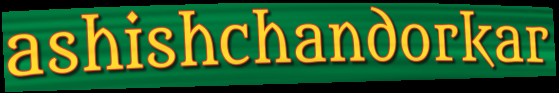
ashishchandorkar